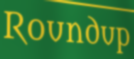
Roundup